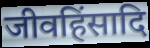
जीवहिंसादि